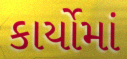
કાર્યોમાં